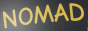
NOMAD